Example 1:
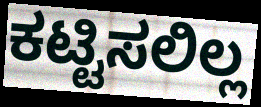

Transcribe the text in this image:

ಕಟ್ಟಿಸಲಿಲ್ಲ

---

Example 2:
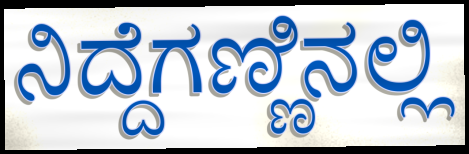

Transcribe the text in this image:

ನಿದ್ದೆಗಣ್ಣಿನಲ್ಲಿ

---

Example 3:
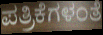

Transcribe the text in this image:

ಪತ್ರಿಕೆಗಳಂತೆ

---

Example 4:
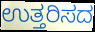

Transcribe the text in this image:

ಉತ್ತರಿಸದ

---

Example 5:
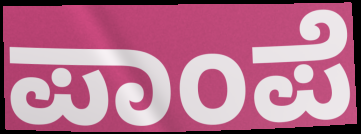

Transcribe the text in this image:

ಪಾಂಪೆ